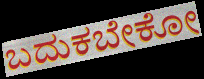
ಬದುಕಬೇಕೋ